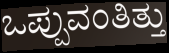
ಒಪ್ಪುವಂತಿತ್ತು